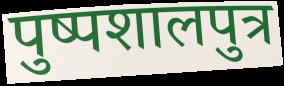
पुष्पशालपुत्र